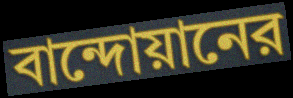
বান্দোয়ানের